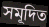
সমূদিত